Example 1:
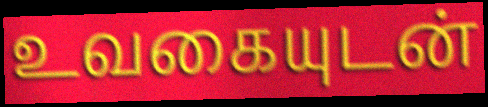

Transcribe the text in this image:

உவகையுடன்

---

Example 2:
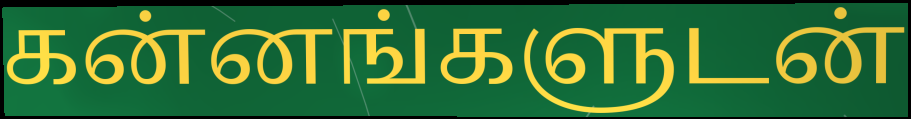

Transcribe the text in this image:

கன்னங்களுடன்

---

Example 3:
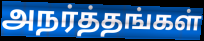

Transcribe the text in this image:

அநர்த்தங்கள்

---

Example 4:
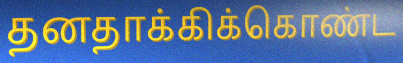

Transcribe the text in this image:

தனதாக்கிக்கொண்ட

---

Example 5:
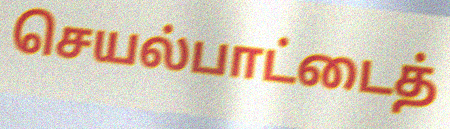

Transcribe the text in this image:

செயல்பாட்டைத்